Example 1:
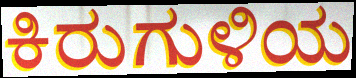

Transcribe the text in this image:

ಕಿರುಗುಳಿಯ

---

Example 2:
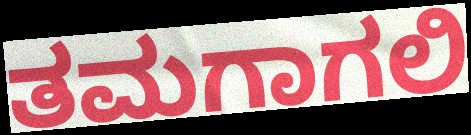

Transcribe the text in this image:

ತಮಗಾಗಲಿ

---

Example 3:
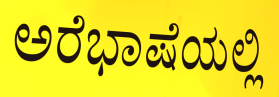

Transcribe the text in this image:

ಅರೆಭಾಷೆಯಲ್ಲಿ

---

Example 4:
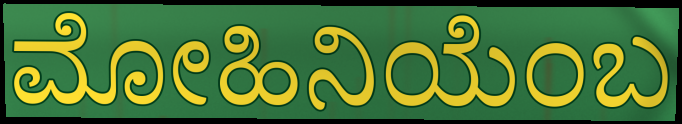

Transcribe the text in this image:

ಮೋಹಿನಿಯೆಂಬ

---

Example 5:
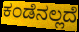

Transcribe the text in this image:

ಕಂಡೆನಲ್ಲದೆ